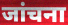
जांचना